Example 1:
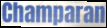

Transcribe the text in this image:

Champaran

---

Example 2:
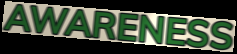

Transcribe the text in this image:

AWARENESS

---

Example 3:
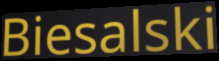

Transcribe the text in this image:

Biesalski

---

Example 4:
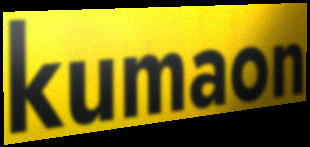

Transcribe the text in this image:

kumaon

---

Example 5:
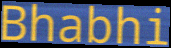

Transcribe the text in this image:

Bhabhi